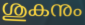
ശുകനും